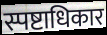
स्पष्टाधिकार